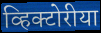
व्हिक्टोरीया